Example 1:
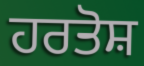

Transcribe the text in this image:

ਹਰਤੋਸ਼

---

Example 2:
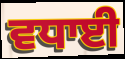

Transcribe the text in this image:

ਵਧਾਈ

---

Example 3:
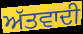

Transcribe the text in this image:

ਅੱਤਵਾਦੀ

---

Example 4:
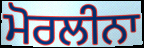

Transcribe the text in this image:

ਮੋਰਲੀਨਾ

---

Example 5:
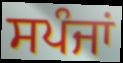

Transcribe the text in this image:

ਸਪੰਜਾਂ